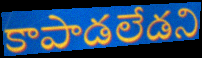
కాపాడలేడని